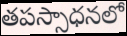
తపస్సాధనలో